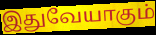
இதுவேயாகும்